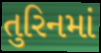
તુરિનમાં